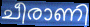
ചീരാണി